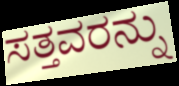
ಸತ್ತವರನ್ನು